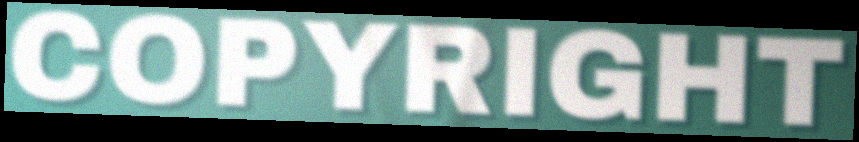
COPYRIGHT